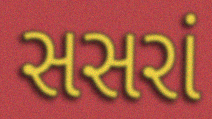
સસરાં